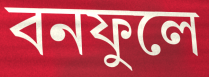
বনফুলে